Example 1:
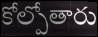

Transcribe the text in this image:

కోల్పోతారు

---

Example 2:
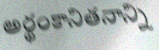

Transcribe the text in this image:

అర్థంకానితనాన్ని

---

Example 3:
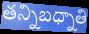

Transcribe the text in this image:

తన్నిబధ్నాతి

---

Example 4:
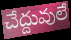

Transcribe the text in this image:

చేద్దువులే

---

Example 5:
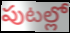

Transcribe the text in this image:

పుటల్లో